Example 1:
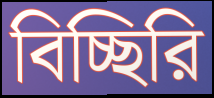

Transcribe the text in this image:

বিচ্ছিরি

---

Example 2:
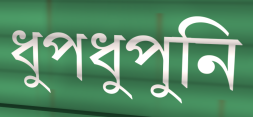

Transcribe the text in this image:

ধুপধুপুনি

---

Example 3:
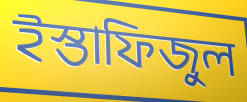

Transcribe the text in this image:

ইস্তাফিজুল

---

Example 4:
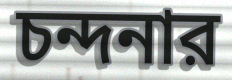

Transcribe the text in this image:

চন্দনার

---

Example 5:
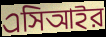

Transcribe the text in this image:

এসিআইর